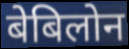
बेबिलोन